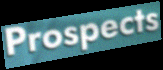
Prospects